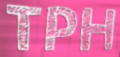
TPH